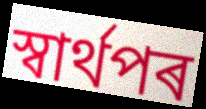
স্বাৰ্থপৰ